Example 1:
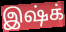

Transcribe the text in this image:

இஷ்க்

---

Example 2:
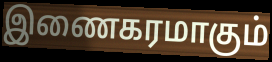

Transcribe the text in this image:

இணைகரமாகும்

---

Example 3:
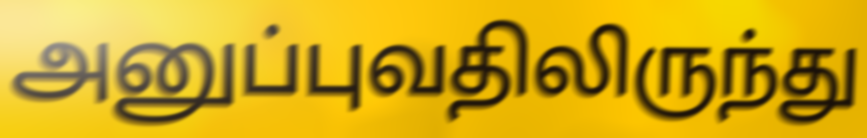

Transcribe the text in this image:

அனுப்புவதிலிருந்து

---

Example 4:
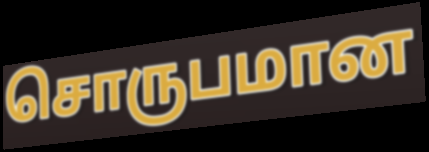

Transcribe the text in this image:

சொருபமான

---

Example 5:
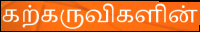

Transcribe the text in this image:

கற்கருவிகளின்